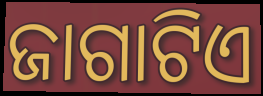
ଜାଗାଟିଏ